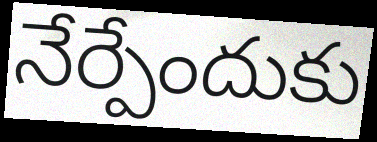
నేర్పేందుకు